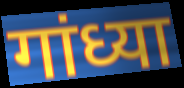
गांध्या